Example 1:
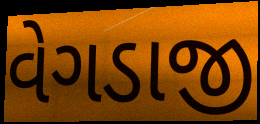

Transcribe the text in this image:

વેગડાજી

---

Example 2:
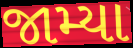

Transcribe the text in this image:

જામ્યા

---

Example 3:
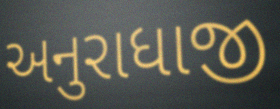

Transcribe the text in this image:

અનુરાધાજી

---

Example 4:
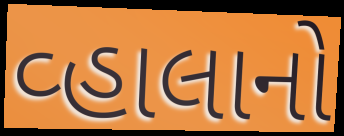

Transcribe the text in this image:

વ્હાલાનો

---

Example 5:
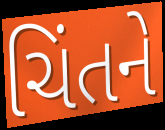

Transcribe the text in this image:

ચિંતને